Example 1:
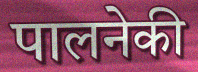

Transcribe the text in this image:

पालनेकी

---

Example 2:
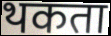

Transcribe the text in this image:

थकता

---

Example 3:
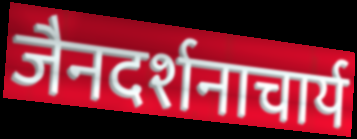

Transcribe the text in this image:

जैनदर्शनाचार्य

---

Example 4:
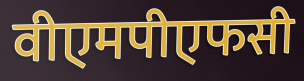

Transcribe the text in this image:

वीएमपीएफसी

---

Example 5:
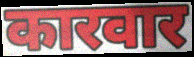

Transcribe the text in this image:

कारवार